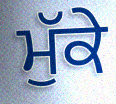
ਮੁੱਕੇ